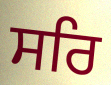
ਸਰਿ